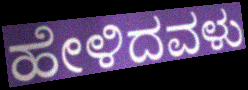
ಹೇಳಿದವಳು